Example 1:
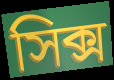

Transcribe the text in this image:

সিক্স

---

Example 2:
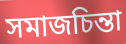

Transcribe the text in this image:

সমাজচিন্তা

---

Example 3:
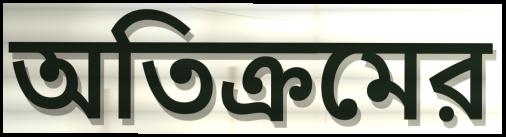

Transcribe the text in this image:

অতিক্রমের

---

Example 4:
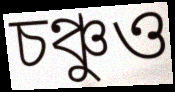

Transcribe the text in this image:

চঞ্চুও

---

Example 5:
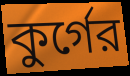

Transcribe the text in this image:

কুর্গের